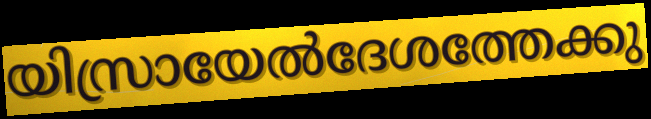
യിസ്രായേൽദേശത്തേക്കു